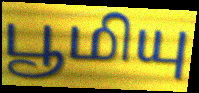
பூமியு